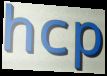
hcp